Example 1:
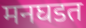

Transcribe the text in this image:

मनघडत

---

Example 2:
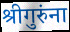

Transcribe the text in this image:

श्रीगुरुंना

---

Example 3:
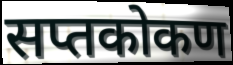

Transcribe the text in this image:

सप्तकोकण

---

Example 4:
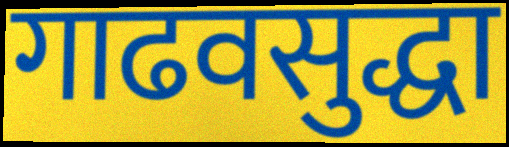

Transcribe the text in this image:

गाढवसुद्धा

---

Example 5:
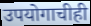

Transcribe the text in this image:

उपयोगाचीही